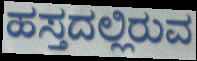
ಹಸ್ತದಲ್ಲಿರುವ